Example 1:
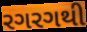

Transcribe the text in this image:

રગરગથી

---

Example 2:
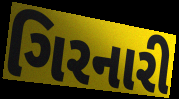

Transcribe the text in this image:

ગિરનારી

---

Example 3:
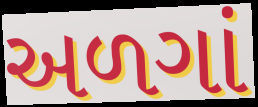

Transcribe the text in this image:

અળગાં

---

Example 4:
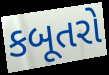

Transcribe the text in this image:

કબૂતરો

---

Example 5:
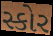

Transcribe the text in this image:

સ્કોર